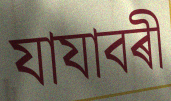
যাযাবৰী